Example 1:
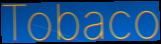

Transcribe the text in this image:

Tobaco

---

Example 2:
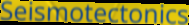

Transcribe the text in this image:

Seismotectonics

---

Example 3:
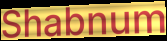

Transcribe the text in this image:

Shabnum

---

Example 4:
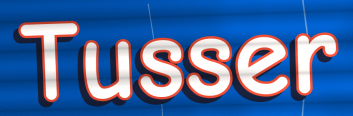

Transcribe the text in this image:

Tusser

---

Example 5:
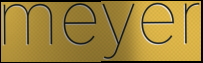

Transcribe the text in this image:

meyer